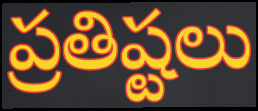
ప్రతిష్టలు